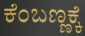
ಕೆಂಬಣ್ಣಕ್ಕೆ